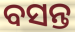
ବସନ୍ତ